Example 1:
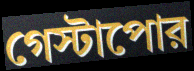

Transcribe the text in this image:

গেস্টাপোর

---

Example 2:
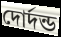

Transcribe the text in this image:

দোর্দন্ড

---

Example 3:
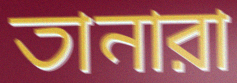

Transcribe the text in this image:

তানারা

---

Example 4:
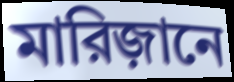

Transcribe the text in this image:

মারিজ়ানে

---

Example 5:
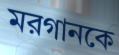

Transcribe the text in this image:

মরগানকে